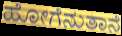
ಹೋಗೆನುತಾನೆ